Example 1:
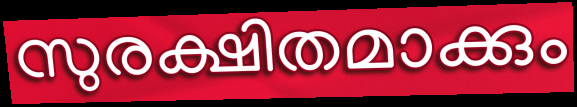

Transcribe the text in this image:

സുരക്ഷിതമാക്കും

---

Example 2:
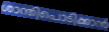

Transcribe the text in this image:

ശാന്തിപൊടിക്കാൻ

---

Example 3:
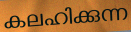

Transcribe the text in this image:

കലഹിക്കുന്ന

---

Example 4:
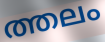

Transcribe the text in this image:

ത്തലം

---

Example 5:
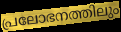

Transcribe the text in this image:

പ്രലോഭനത്തിലും